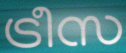
ട്രീസ